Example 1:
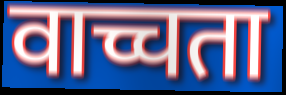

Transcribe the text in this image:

वाच्चता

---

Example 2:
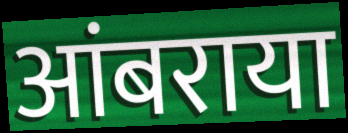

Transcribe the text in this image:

आंबराया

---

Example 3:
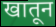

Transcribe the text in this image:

खातून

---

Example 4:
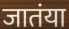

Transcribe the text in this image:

जातंया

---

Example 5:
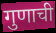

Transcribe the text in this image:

गुणाची